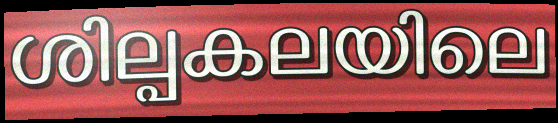
ശില്പകലയിലെ